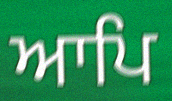
ਆਪਿ